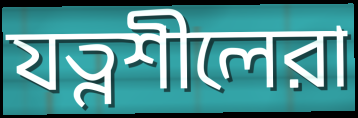
যত্নশীলেরা